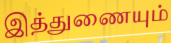
இத்துணையும்